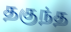
தகுந்த